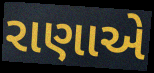
રાણાએ